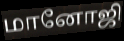
மானோஜி